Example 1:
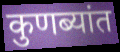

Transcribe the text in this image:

कुणब्यांत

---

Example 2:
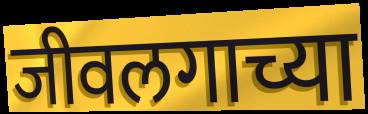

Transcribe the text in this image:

जीवलगाच्या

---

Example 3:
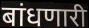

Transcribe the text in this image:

बांधणारी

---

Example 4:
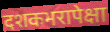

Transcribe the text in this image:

दशकभरापेक्षा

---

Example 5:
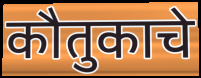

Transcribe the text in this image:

कौतुकाचे